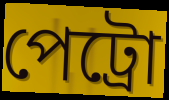
পেট্রো